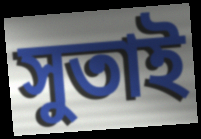
সুতাই